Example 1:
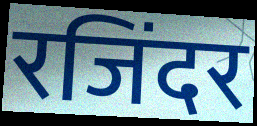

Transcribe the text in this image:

रजिंदर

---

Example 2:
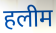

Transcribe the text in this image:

हलीम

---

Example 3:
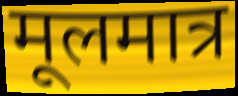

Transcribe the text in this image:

मूलमात्र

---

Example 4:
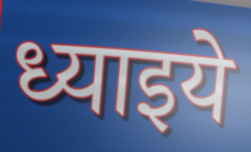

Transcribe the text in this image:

ध्याइये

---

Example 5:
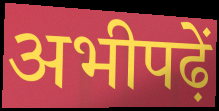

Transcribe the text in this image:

अभीपढ़ें